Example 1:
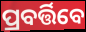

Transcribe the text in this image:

ପ୍ରବର୍ତ୍ତିବେ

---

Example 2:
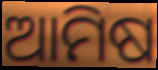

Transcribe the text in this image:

ଆମିଷ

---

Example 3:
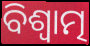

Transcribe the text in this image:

ବିଶ୍ୱାତ୍ମ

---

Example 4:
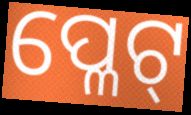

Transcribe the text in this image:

ପ୍ଳେଟ୍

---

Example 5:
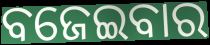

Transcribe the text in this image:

ବଜେଇବାର